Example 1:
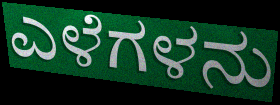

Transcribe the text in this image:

ಎಳೆಗಳನು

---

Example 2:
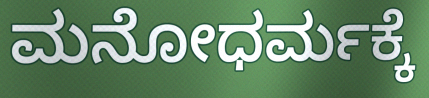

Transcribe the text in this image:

ಮನೋಧರ್ಮಕ್ಕೆ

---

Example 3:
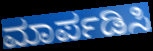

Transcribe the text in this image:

ಮಾರ್ಪಡಿಸಿ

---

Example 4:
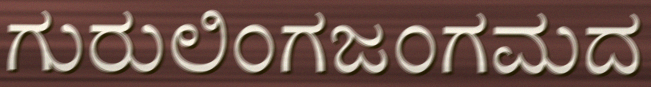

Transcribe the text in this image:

ಗುರುಲಿಂಗಜಂಗಮದ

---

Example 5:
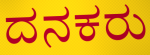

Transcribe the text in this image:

ದನಕರು